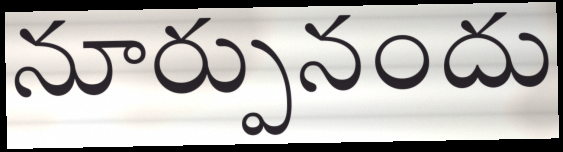
నూర్పునందు